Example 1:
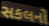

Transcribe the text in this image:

સકલનો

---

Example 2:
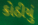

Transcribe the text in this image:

કોઠીયું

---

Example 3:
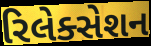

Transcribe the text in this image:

રિલેક્સેશન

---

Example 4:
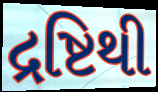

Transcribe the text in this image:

દ્રષ્ટિથી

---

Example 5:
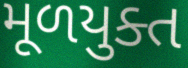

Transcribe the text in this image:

મૂળયુક્ત